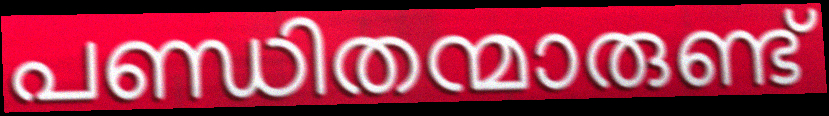
പണ്ഡിതന്മാരുണ്ട്